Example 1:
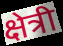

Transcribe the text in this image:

क्षेत्री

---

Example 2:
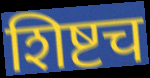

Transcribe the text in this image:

शिष्टच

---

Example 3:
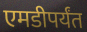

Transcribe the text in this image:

एमडीपर्यंत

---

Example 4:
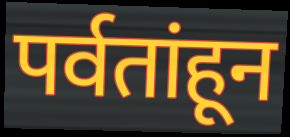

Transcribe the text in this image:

पर्वतांहून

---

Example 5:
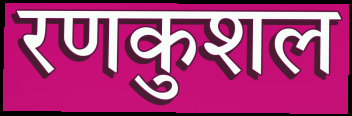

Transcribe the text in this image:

रणकुशल